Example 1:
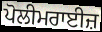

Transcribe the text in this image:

ਪੋਲੀਮਰਾਈਜ਼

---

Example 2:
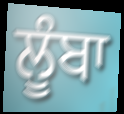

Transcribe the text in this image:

ਲੂੰਬਾ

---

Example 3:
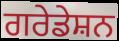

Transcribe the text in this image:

ਗਰੇਡੇਸ਼ਨ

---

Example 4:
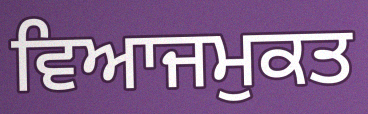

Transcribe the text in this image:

ਵਿਆਜਮੁਕਤ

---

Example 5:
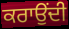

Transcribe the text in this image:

ਕਰਾਉਂਦੀ